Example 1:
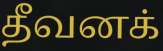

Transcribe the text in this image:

தீவனக்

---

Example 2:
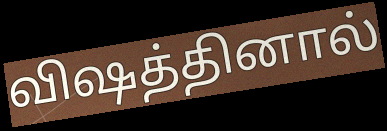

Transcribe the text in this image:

விஷத்தினால்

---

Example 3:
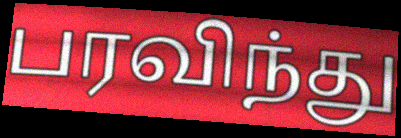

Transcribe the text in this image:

பரவிந்து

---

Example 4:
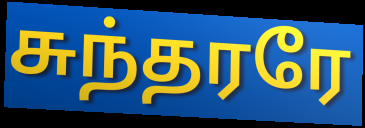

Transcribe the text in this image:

சுந்தரரே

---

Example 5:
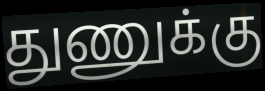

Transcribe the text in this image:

துணுக்கு